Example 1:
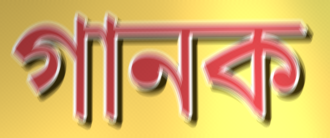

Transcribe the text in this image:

গানক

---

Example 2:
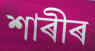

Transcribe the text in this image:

শাৰীৰ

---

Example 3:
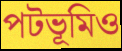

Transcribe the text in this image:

পটভূমিও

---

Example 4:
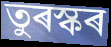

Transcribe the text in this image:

তুৰস্কৰ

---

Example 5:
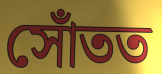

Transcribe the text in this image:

সোঁতত